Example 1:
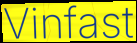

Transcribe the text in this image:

Vinfast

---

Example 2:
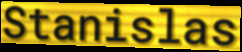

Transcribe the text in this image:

Stanislas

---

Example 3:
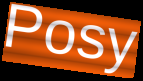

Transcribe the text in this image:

Posy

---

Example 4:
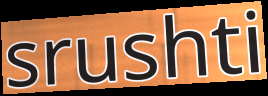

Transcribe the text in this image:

srushti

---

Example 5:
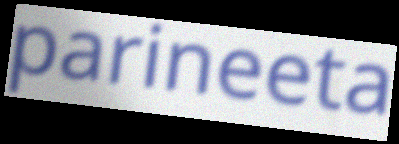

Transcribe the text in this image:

parineeta